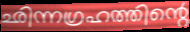
ഛിന്നഗ്രഹത്തിന്റെ